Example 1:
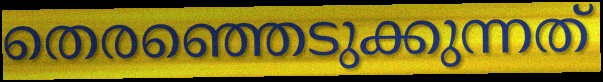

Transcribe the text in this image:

തെരഞ്ഞെടുക്കുന്നത്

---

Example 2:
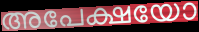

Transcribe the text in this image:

അപേക്ഷയോ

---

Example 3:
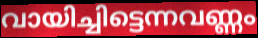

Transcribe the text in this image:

വായിച്ചിട്ടെന്നവണ്ണം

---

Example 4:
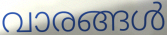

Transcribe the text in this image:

വാരങ്ങൾ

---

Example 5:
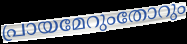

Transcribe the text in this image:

പ്രായമേറുംതോറും